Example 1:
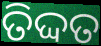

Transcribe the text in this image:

ତିଦ୍ଦତ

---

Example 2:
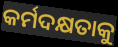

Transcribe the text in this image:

କର୍ମଦକ୍ଷତାକୁ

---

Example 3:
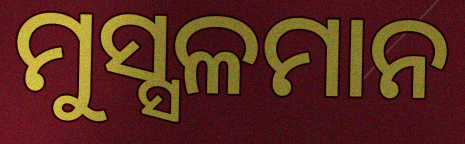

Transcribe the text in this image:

ମୁସ୍ସଳମାନ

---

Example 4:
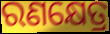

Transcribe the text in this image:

ରଣକ୍ଷେତ୍ର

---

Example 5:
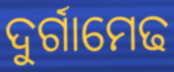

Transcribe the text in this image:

ଦୁର୍ଗାମେଢ